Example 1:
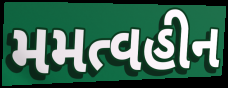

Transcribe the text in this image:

મમત્વહીન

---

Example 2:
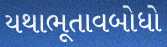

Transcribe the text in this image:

યથાભૂતાવબોધો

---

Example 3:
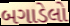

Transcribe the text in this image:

બગાડેલો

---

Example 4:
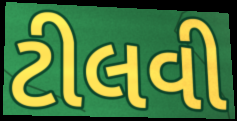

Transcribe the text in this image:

ટીલવી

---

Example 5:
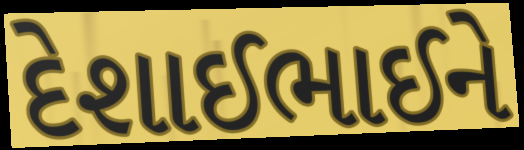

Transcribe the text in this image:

દેશાઈભાઈને